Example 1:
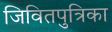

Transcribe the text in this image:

जिवितपुत्रिका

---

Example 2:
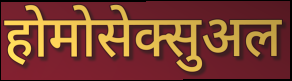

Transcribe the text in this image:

होमोसेक्सुअल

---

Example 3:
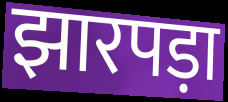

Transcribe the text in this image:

झारपड़ा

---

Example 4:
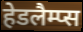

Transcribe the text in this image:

हेडलैम्प्स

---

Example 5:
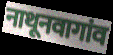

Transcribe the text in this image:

नाथूनवागांव